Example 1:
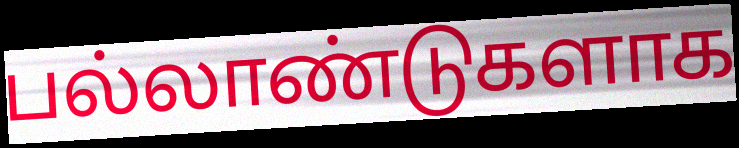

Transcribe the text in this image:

பல்லாண்டுகளாக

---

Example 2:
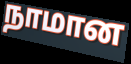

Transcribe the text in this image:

நாமான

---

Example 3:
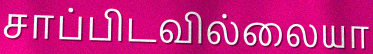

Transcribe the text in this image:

சாப்பிடவில்லையா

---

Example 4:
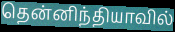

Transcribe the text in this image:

தென்னிந்தியாவில்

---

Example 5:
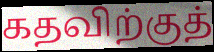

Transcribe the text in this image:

கதவிற்குத்